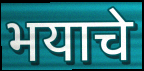
भयाचे